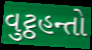
વુટ્ઠહન્તો